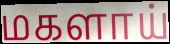
மகளாய்